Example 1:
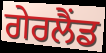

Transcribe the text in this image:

ਗੇਰਲੈਂਡ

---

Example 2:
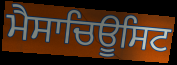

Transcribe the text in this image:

ਮੈਸਾਚਿਊਸਿਟ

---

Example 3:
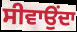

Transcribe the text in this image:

ਸੀਵਾਉਂਦਾ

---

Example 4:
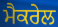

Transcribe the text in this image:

ਮੈਕਰੇਲ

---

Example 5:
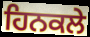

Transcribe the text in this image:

ਹਿਨਕਲੇ